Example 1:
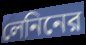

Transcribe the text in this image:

লেনিনের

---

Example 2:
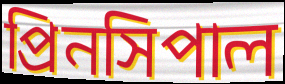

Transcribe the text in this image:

প্রিনসিপাল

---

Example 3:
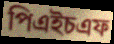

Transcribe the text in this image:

পিএইচএফ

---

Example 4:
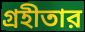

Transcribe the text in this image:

গ্রহীতার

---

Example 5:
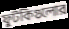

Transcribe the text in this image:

ফুটকিগুলোর